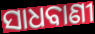
ସାଧବାଣୀ